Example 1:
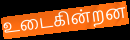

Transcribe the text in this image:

உடைகின்றன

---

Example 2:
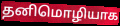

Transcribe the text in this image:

தனிமொழியாக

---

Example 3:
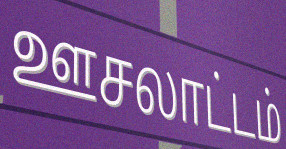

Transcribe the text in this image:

ஊசலாட்டம்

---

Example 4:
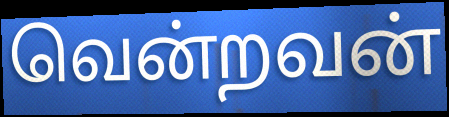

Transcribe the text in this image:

வென்றவன்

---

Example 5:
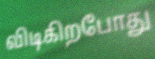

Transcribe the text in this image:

விடிகிறபோது